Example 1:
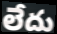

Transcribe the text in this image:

లేదు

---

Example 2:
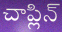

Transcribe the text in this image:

చాప్లిన్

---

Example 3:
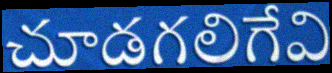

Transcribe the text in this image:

చూడగలిగేవి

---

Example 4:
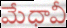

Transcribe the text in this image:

మేధావీ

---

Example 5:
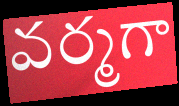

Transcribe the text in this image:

వర్మగా